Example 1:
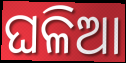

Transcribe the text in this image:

ଘଳିଆ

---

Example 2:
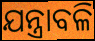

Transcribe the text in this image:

ଯନ୍ତ୍ରାବଳି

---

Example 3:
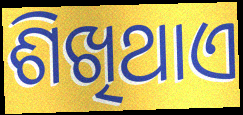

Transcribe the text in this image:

ଶିଖିଥାଏ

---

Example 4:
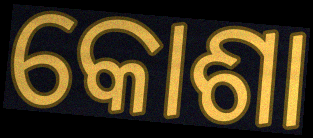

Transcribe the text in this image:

କୋଶା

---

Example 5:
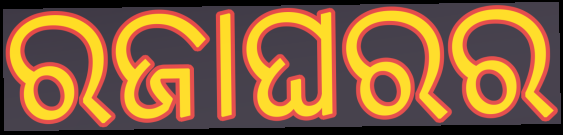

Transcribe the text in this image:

ରଜାଘରର